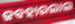
ଜବହାରଲାଲ